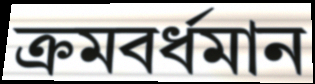
ক্রমবর্ধমান